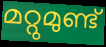
മറ്റുമുണ്ട്